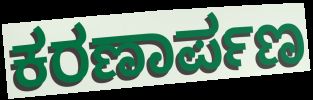
ಕರಣಾರ್ಪಣ